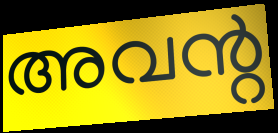
അവന്റ